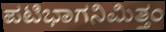
ಪಟಿಭಾಗನಿಮಿತ್ತಂ